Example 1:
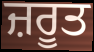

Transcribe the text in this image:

ਜ਼ਰੂਤ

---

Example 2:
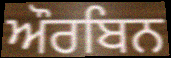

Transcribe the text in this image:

ਔਰਬਿਨ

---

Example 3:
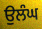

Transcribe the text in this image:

ਉਲੰਘ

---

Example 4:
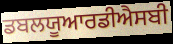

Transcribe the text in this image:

ਡਬਲਯੂਆਰਡੀਐਸਬੀ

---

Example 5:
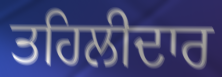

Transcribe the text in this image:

ਤਹਿਲੀਦਾਰ